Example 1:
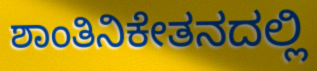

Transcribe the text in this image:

ಶಾಂತಿನಿಕೇತನದಲ್ಲಿ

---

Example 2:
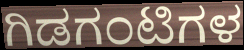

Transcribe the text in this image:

ಗಿಡಗಂಟಿಗಳ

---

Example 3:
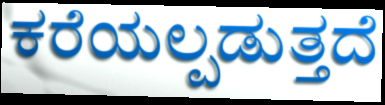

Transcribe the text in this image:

ಕರೆಯಲ್ಪಡುತ್ತದೆ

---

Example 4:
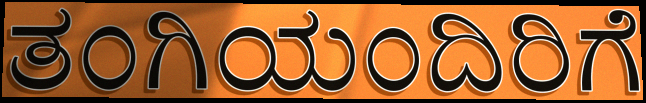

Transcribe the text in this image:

ತಂಗಿಯಂದಿರಿಗೆ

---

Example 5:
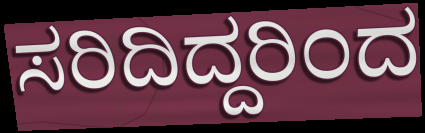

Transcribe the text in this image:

ಸರಿದಿದ್ದರಿಂದ